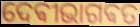
ଦେଵୀଭାଗଵତ